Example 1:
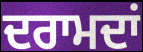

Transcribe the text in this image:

ਦਰਾਮਦਾਂ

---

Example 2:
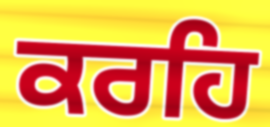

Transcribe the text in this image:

ਕਰਹਿ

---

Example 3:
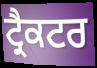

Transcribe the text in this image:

ਟ੍ਰੈਕਟਰ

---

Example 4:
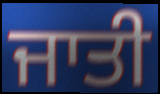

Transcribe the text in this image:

ਜਾਤੀ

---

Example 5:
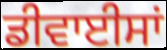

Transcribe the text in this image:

ਡੀਵਾਈਸਾਂ